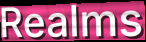
Realms